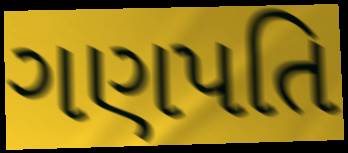
ગણપતિ